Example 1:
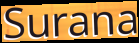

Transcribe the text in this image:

Surana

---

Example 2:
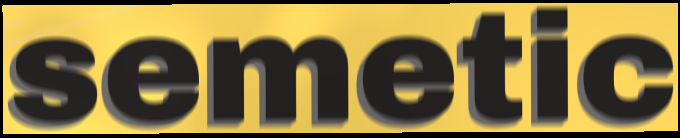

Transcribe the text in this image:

semetic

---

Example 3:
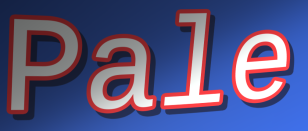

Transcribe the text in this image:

Pale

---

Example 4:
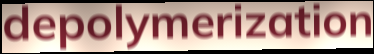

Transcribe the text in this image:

depolymerization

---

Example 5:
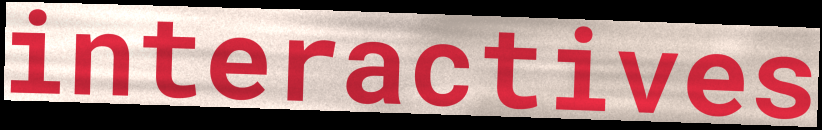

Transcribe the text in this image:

interactives